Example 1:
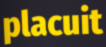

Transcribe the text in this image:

placuit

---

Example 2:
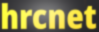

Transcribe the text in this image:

hrcnet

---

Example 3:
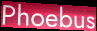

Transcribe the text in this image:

Phoebus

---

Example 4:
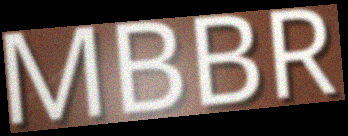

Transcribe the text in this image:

MBBR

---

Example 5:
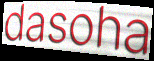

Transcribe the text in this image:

dasoha